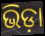
ଭିଡ଼ା